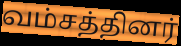
வம்சத்தினர்